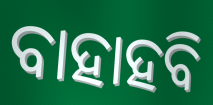
ବାହାହବି